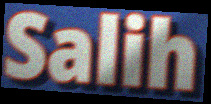
Salih